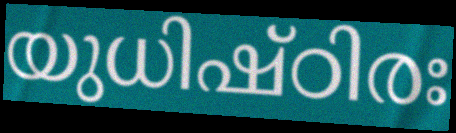
യുധിഷ്ഠിരഃ